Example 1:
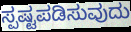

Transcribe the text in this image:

ಸ್ಪಷ್ಟಪಡಿಸುವುದು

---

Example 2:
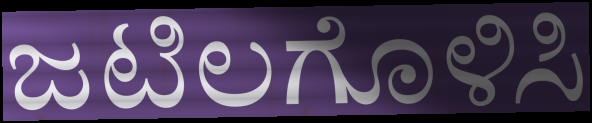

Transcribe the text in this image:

ಜಟಿಲಗೊಳಿಸಿ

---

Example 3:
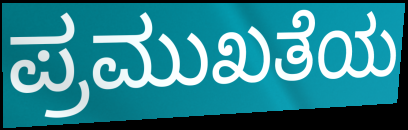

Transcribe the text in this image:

ಪ್ರಮುಖತೆಯ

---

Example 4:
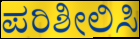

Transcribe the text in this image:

ಪರಿಶೀಲಿಸಿ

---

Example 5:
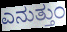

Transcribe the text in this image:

ಎನುತ್ತುಂ